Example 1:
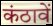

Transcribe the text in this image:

कंठावें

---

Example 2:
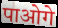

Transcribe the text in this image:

पाओगे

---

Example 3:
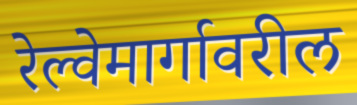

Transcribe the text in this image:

रेल्वेमार्गावरील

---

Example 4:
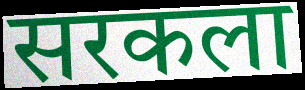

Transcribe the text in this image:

सरकला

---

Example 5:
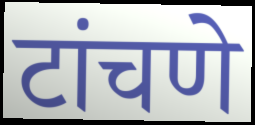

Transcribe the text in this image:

टांचणे